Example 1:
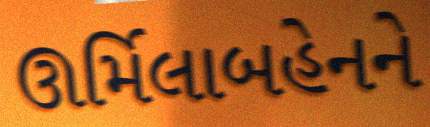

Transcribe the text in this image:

ઊર્મિલાબહેનને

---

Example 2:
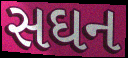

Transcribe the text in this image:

સઘન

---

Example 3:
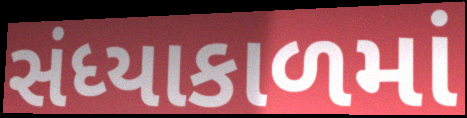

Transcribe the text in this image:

સંધ્યાકાળમાં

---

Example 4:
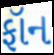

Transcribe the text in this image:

ફૉન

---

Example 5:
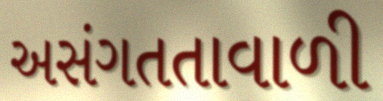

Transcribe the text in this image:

અસંગતતાવાળી